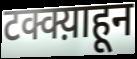
टक्क्य़ाहून